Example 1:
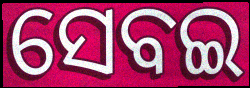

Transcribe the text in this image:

ସେବଇ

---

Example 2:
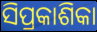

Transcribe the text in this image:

ସିପ୍ରକାଶିକା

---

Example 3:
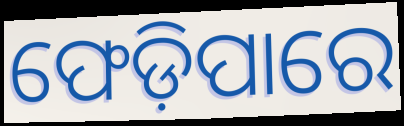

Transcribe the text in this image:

ଫେଡ଼ିପାରେ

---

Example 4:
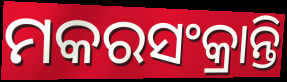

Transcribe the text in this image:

ମକରସଂକ୍ରାନ୍ତି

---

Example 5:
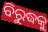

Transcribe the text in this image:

ବିରୁଦ୍ଧକୁ